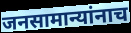
जनसामान्यांनाच